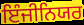
ਇੰਜੀਨਿਯਰ